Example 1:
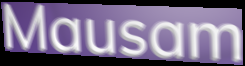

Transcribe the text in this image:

Mausam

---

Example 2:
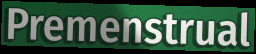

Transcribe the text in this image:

Premenstrual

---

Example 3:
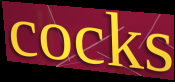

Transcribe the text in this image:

cocks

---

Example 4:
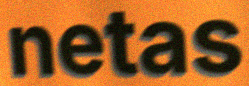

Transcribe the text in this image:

netas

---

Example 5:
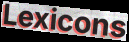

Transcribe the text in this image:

Lexicons